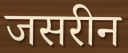
जसरीन